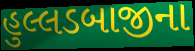
હુલ્લડબાજીના